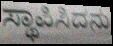
ಸ್ಥಾಪಿಸಿದನು